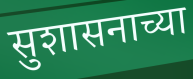
सुशासनाच्या